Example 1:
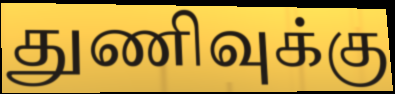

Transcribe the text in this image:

துணிவுக்கு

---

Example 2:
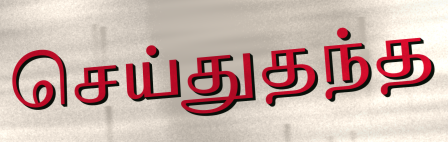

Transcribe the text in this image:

செய்துதந்த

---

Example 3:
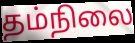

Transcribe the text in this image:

தம்நிலை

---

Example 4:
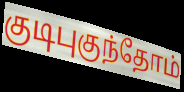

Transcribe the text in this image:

குடிபுகுந்தோம்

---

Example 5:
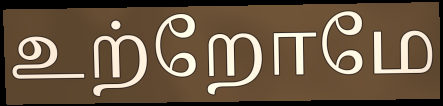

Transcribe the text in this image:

உற்றோமே